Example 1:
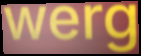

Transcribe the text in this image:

werg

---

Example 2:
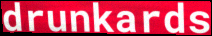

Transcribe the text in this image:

drunkards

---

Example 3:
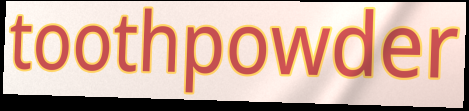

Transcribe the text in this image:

toothpowder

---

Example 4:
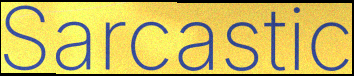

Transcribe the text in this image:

Sarcastic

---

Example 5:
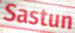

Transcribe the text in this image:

Sastun